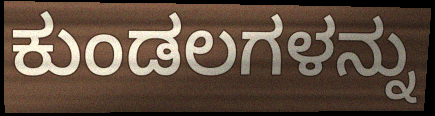
ಕುಂಡಲಗಳನ್ನು